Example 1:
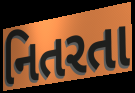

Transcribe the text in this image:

નિતરતા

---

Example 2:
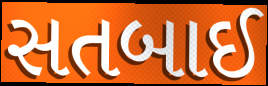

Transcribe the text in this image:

સતબાઈ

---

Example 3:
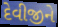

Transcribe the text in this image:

દેવીજીને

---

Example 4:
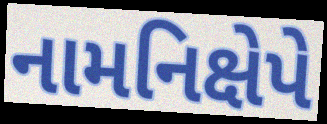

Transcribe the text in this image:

નામનિક્ષેપે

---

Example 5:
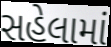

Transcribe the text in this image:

સહેલામાં